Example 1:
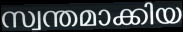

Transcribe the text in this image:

സ്വന്തമാക്കിയ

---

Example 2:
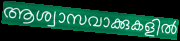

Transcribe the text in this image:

ആശ്വാസവാക്കുകളിൽ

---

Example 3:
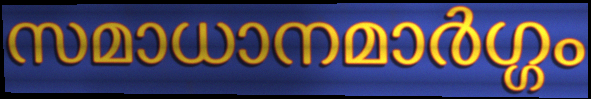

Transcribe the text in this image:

സമാധാനമാർഗ്ഗം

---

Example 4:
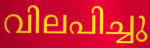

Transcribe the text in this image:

വിലപിച്ചു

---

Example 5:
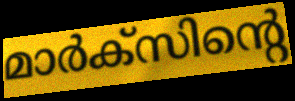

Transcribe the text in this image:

മാർക്സിന്റെ